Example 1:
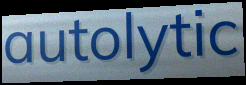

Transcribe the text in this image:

autolytic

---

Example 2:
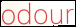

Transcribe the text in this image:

odour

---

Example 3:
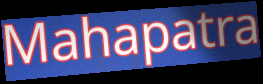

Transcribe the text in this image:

Mahapatra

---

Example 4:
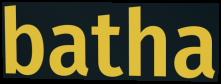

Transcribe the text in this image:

batha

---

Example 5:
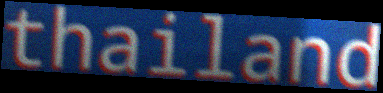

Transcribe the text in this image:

thailand